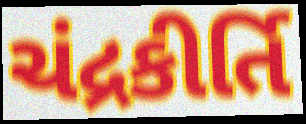
ચંદ્રકીર્તિ